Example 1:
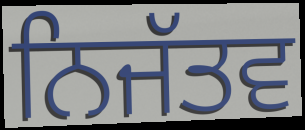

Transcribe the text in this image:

ਨਿਜੱਤਵ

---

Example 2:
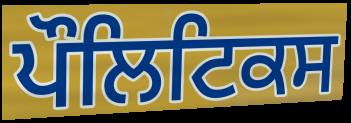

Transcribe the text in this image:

ਪੌਲਿਟਿਕਸ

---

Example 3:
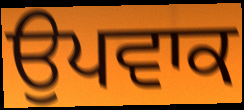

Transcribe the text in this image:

ਉਪਵਾਕ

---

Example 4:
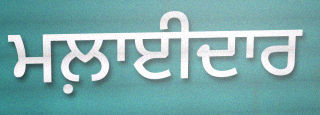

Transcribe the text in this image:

ਮਲ਼ਾਈਦਾਰ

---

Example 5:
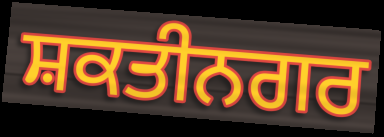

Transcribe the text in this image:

ਸ਼ਕਤੀਨਗਰ